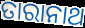
ତାରାନାଥ